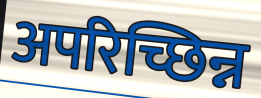
अपरिच्छिन्न